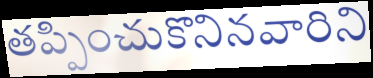
తప్పించుకొనినవారిని